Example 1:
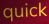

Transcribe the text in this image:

quick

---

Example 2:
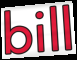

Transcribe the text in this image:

bill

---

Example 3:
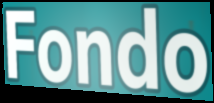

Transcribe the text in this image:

Fondo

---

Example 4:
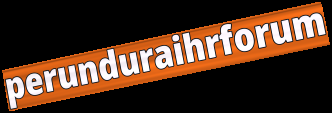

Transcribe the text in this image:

perunduraihrforum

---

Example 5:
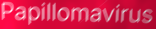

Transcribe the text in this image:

Papillomavirus